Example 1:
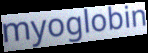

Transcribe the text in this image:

myoglobin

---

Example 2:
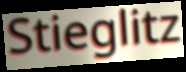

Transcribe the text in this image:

Stieglitz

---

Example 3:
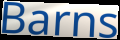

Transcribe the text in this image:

Barns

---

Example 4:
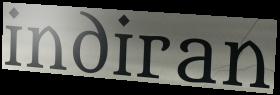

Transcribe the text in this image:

indiran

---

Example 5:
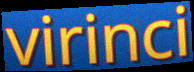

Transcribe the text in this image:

virinci